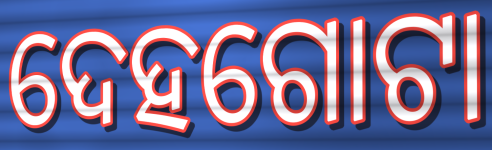
ଦେହଗୋଟା